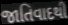
જાતિવાદથી